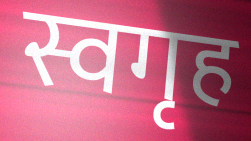
स्वगृह